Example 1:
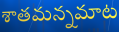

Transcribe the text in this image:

శాతమన్నమాట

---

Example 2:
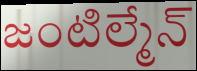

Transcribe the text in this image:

జంటిల్మేన్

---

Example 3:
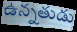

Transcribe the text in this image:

ఉన్నతుడు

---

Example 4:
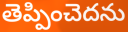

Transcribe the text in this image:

తెప్పించెదను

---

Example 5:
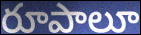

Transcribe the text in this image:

రూపాలూ